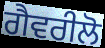
ਗੈਵਰੀਲੋ